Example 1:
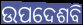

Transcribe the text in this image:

ଉପଦେଶବି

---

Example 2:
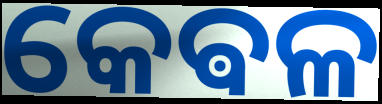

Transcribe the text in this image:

କେଵଳ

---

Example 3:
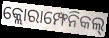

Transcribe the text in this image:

କ୍ଲୋରାମ୍ଫେନିକଲ୍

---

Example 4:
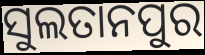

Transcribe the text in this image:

ସୁଲତାନପୁର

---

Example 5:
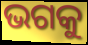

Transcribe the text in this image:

ଭଗକୁ